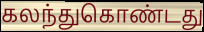
கலந்துகொண்டது